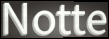
Notte